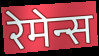
रेमेन्स